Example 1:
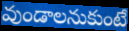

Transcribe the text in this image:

వుండాలనుకుంటే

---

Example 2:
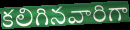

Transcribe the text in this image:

కలిగినవారిగా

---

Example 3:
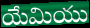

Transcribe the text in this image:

యేమియు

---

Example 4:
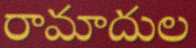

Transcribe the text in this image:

రామాదుల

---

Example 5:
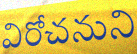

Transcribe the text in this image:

విరోచనుని